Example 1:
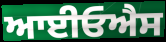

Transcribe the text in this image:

ਆਈਓਐਸ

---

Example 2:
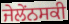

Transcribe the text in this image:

ਜੇਲੇਂਨਸਕੀ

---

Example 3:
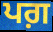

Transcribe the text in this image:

ਪਗ਼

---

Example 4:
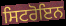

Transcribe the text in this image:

ਸਿਟਰੋਇਨ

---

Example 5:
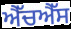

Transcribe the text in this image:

ਐੱਚਐੱਸ